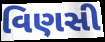
વિણસી